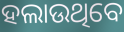
ହଲାଉଥିବେ